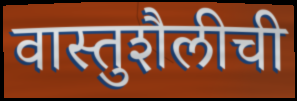
वास्तुशैलीची